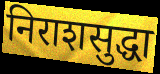
निराशसुद्धा